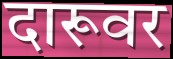
दारूवर